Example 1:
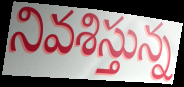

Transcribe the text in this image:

నివశిస్తున్న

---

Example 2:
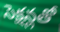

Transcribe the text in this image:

సెక్షన్లతో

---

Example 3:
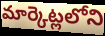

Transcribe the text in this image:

మార్కెట్లలోని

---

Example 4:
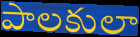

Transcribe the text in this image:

పాలకులా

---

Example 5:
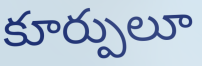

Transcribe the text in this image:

కూర్పులూ